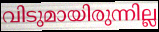
വിടുമായിരുന്നില്ല